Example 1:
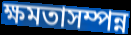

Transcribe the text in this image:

ক্ষমতাসম্পন্ন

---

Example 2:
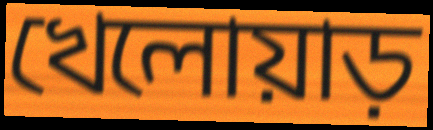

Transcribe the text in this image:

খেলোয়াড়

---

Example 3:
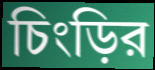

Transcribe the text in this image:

চিংড়ির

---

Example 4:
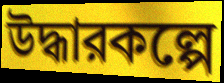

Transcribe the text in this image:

উদ্ধারকল্পে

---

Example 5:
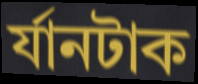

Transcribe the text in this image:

র্যানটাক